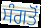
ਸੰਗਤੋਂ